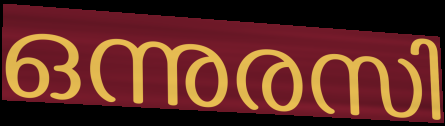
ഒന്നുരസി